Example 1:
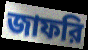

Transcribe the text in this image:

জাফরি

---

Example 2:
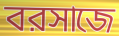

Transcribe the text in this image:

বরসাজে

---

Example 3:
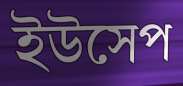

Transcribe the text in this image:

ইউসেপ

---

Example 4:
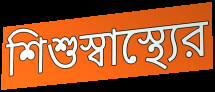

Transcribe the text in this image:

শিশুস্বাস্থ্যের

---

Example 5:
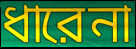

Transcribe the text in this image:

ধারেনা